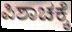
ಪಿಶಾಚಕ್ಕೆ